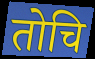
तोचि